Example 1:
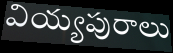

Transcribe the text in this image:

వియ్యపురాలు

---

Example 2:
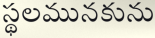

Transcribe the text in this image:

స్థలమునకును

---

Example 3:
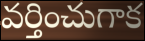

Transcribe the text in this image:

వర్తించుగాక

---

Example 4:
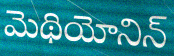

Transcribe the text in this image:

మెథియోనిన్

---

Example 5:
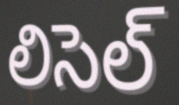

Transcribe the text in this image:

లిసెల్